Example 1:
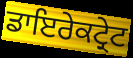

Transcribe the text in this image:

ਡਾਇਰੇਕਟ੍ਰੇਟ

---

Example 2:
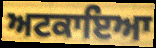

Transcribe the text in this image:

ਅਟਕਾਇਆ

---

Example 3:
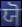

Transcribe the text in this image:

ਯੋ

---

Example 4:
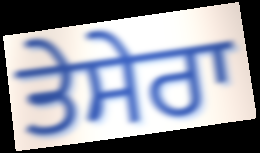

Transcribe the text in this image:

ਤੇਸੇਰਾ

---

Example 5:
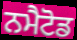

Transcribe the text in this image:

ਨਮੈਟੋਡ